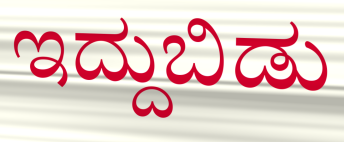
ಇದ್ದುಬಿಡು